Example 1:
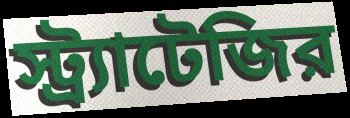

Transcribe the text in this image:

স্ট্র্যাটেজির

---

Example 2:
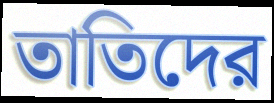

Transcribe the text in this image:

তাতিদের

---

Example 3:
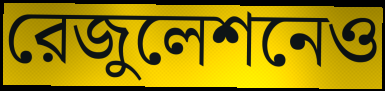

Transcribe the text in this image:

রেজুলেশনেও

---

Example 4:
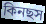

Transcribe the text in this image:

কিনছস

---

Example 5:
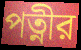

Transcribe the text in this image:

পত্নীর